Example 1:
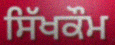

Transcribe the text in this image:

ਸਿੱਖਕੌਮ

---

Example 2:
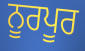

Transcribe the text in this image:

ਨੂਰਪੂਰ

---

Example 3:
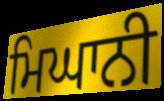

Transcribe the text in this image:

ਮਿਘਾਨੀ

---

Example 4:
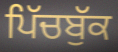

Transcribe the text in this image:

ਪਿੱਚਬੁੱਕ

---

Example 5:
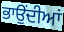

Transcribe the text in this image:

ਭਾਉਂਦੀਆਂ